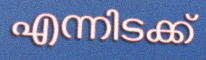
എന്നിടക്ക്